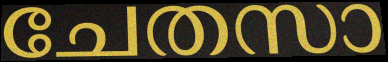
ചേതസാ